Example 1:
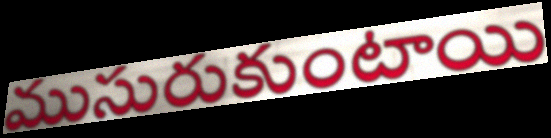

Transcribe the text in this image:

ముసురుకుంటాయి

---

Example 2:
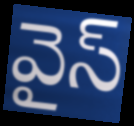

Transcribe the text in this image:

వైస్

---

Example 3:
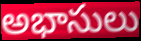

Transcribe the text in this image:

అభాసులు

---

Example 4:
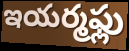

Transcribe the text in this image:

ఇయర్మఫ్లు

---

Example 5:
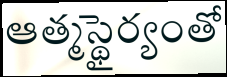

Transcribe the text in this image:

ఆత్మస్థైర్యంతో